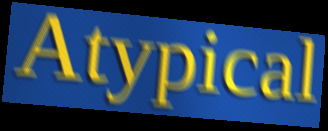
Atypical